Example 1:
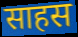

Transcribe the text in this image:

साहस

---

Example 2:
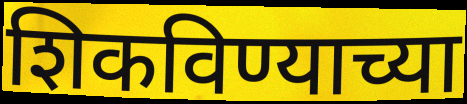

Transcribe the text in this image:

शिकविण्याच्या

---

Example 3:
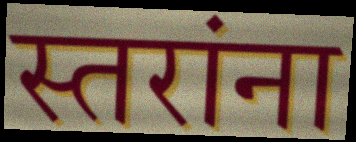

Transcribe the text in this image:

स्तरांना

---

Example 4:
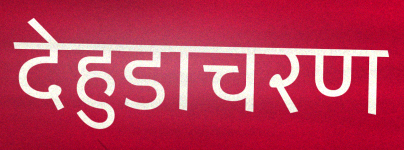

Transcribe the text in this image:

देहुडाचरण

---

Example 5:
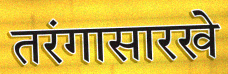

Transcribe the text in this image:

तरंगासारखे